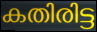
കതിരിട്ട